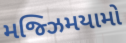
મજ્ઝિમયામો